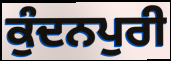
ਕੁੰਦਨਪੁਰੀ